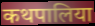
कथपालिया